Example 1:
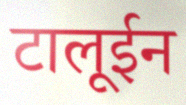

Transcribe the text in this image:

टालूईन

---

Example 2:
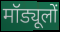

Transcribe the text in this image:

मॉड्यूलों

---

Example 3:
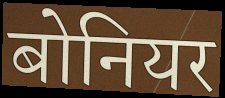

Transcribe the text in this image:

बोनियर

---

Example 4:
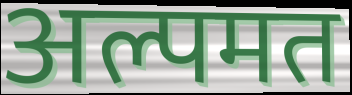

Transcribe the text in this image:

अल्पमत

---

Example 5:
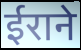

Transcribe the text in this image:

ईराने